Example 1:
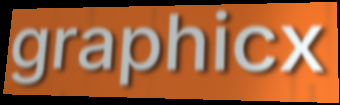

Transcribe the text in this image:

graphicx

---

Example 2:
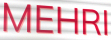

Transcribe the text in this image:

MEHRI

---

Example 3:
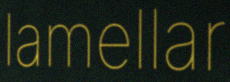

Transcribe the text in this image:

lamellar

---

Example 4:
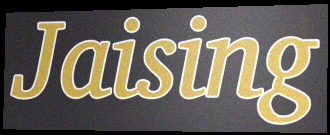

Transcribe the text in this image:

Jaising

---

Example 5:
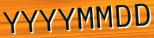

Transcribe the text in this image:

YYYYMMDD